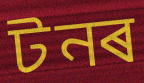
টনৰ